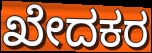
ಖೇದಕರ